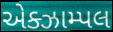
એક્ઝામ્પલ